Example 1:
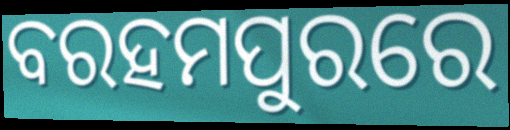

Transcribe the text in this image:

ବରହମପୁରରେ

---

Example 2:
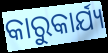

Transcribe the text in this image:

କାରୁକାର୍ଯ୍ୟ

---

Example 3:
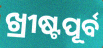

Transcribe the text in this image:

ଖ୍ରୀଷ୍ଟପୂର୍ବ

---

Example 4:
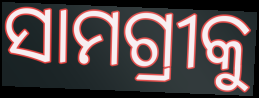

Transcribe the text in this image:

ସାମଗ୍ରୀକୁ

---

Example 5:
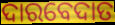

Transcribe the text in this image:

ଦାରବେଦାତ